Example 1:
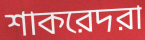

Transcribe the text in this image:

শাকরেদরা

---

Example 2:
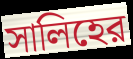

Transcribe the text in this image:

সালিহের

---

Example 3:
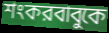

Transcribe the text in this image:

শংকরবাবুকে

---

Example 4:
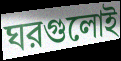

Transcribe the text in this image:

ঘরগুলোই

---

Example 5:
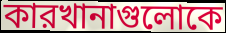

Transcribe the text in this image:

কারখানাগুলোকে